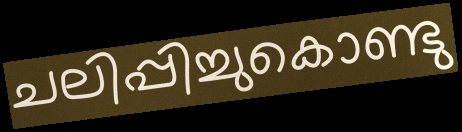
ചലിപ്പിച്ചുകൊണ്ടു